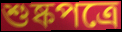
শুষ্কপত্রে